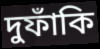
দুফাঁকি